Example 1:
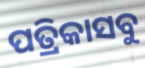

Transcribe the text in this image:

ପତ୍ରିକାସବୁ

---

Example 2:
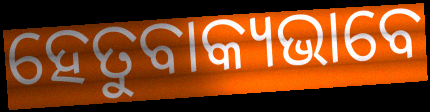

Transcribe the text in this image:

ହେତୁବାକ୍ୟଭାବେ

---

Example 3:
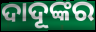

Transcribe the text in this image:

ଦାଦୂଙ୍କର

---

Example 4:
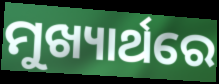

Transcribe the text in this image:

ମୁଖ୍ୟାର୍ଥରେ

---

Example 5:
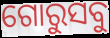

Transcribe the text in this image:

ଗୋରୁସବୁ